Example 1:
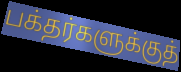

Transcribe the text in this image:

பக்தர்களுக்குத்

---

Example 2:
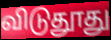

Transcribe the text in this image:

விடுதூது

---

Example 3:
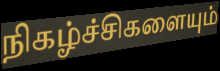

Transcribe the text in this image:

நிகழ்ச்சிகளையும்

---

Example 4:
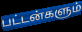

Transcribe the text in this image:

பட்டன்களும்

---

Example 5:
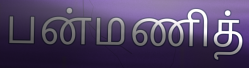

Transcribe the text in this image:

பன்மணித்